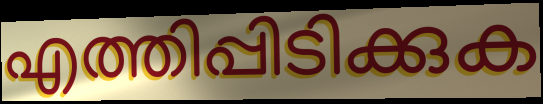
എത്തിപ്പിടിക്കുക